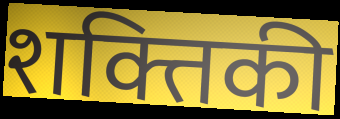
शक्तिकी